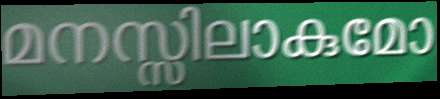
മനസ്സിലാകുമോ